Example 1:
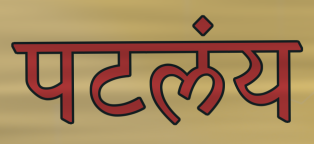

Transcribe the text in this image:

पटलंय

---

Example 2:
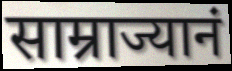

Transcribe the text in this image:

साम्राज्यानं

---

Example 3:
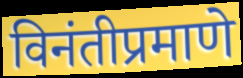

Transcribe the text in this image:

विनंतीप्रमाणे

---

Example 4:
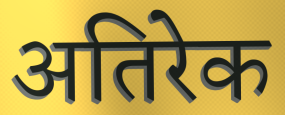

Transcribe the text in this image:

अतिरेक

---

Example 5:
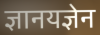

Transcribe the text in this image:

ज्ञानयज्ञेन